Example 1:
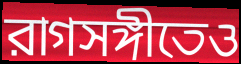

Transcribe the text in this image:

রাগসঙ্গীতেও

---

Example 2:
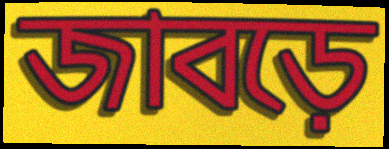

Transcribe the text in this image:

জাবড়ে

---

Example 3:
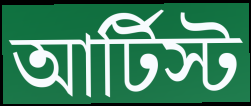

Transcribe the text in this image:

আর্টিস্ট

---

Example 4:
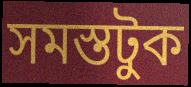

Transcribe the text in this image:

সমস্তটুক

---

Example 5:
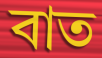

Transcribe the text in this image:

বাত